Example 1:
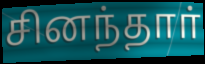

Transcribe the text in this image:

சினந்தார்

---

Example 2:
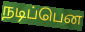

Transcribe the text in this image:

நடிப்பென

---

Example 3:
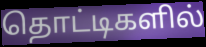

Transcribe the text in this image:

தொட்டிகளில்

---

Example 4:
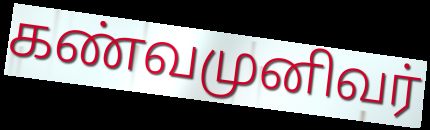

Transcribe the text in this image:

கண்வமுனிவர்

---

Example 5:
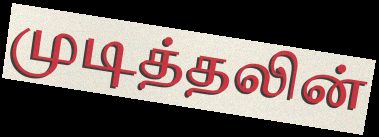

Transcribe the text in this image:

முடித்தலின்